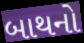
બાથનો